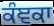
ਕੰਞਕਾ